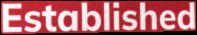
Established